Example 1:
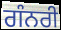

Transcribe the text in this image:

ਗੰਨਰੀ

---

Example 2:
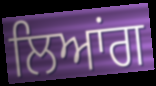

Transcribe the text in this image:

ਲਿਆਂਗ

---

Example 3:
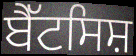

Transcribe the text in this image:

ਬੈੱਟਸਿਸ਼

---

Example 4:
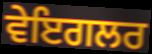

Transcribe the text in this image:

ਵੇਇਗਲਰ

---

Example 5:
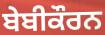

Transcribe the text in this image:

ਬੇਬੀਕੌਰਨ